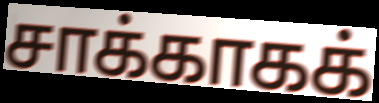
சாக்காகக்